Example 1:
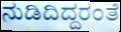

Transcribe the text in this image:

ನುಡಿದಿದ್ದರಂತೆ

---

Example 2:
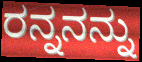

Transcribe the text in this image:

ರನ್ನನನ್ನು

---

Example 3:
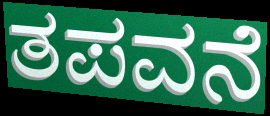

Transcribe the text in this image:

ತಪವನೆ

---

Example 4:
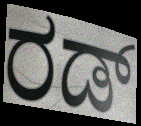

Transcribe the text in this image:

ರಡ್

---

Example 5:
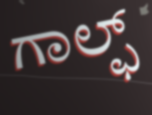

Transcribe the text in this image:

ಗಾಲ್ಫ್